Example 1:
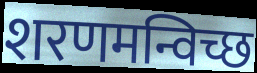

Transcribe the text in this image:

शरणमन्विच्छ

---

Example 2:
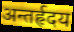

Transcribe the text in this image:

अन्तर्हृदय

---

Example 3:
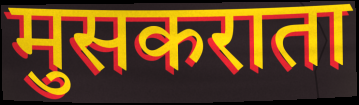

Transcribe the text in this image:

मुसकराता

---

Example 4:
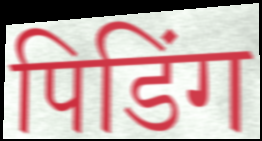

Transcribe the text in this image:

पिडिंग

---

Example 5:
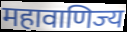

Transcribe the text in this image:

महावाणिज्‍य